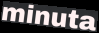
minuta